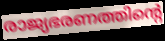
രാജ്യഭരണത്തിന്റെ